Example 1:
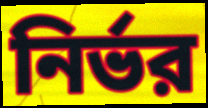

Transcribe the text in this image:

নির্ভর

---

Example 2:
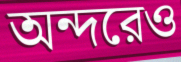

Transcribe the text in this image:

অন্দরেও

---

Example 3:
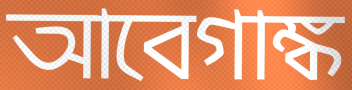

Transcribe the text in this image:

আবেগাঙ্ক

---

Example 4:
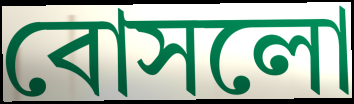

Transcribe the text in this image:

বোসলো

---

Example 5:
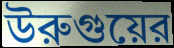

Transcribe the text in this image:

উরুগুয়ের